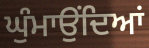
ਘੁੰਮਾਉਂਦਿਆਂ